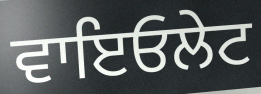
ਵਾਇਓਲੇਟ